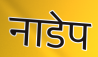
नाडेप